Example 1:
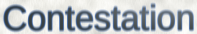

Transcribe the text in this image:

Contestation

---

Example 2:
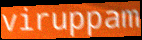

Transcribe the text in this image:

viruppam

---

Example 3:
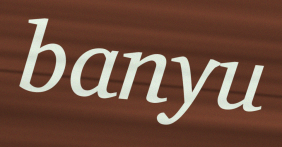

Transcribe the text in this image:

banyu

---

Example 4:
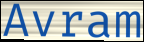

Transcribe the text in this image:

Avram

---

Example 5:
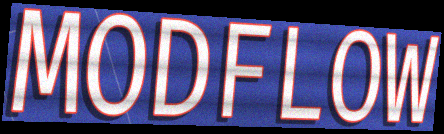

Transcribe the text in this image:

MODFLOW